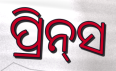
ପ୍ରିନ୍‍ସ